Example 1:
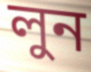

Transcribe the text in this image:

লুন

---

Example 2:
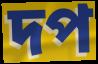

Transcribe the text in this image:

দপ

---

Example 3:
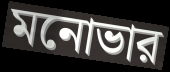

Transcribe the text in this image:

মনোভার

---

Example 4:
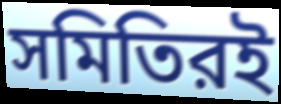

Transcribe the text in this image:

সমিতিরই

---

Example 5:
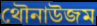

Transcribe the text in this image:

থৌনাউজম